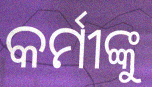
କର୍ମୀଙ୍କୁ